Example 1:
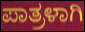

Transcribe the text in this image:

ಪಾತ್ರಳಾಗಿ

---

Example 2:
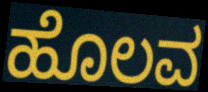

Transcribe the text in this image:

ಹೊಲವ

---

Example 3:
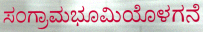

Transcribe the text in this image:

ಸಂಗ್ರಾಮಭೂಮಿಯೊಳಗನೆ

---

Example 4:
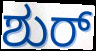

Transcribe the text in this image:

ಶುರ್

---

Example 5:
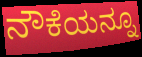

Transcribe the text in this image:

ನೌಕೆಯನ್ನೂ